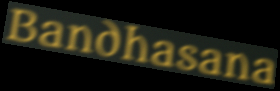
Bandhasana